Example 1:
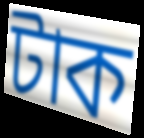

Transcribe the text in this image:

টাক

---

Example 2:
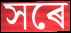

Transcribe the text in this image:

সৰে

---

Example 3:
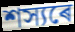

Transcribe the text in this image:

শস্যৰে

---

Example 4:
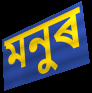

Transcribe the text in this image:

মনুৰ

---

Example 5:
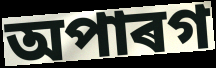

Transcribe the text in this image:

অপাৰগ